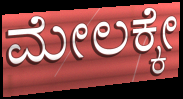
ಮೇಲಕ್ಕೇ